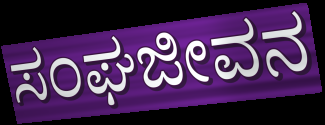
ಸಂಘಜೀವನ